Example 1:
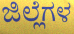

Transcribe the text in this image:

ಜಿಲ್ಲೆಗಳ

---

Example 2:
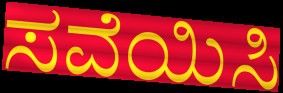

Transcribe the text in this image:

ಸವೆಯಿಸಿ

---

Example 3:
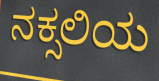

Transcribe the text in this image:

ನಕ್ಸಲಿಯ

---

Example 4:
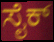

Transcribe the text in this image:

ಸೈಕ್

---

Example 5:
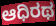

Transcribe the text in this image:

ಆಧಿರಥ